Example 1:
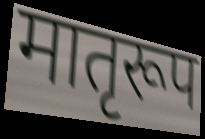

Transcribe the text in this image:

मातृरूप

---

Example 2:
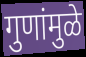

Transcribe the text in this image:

गुणांमुळे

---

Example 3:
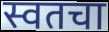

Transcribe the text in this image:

स्वतचा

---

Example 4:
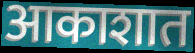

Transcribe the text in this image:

आकाशात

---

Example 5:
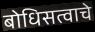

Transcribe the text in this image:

बोधिसत्वाचे